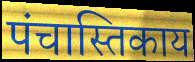
पंचास्तिकाय